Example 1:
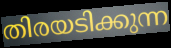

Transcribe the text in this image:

തിരയടിക്കുന്ന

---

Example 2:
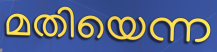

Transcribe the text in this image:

മതിയെന്ന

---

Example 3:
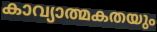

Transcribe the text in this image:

കാവ്യാത്മകതയും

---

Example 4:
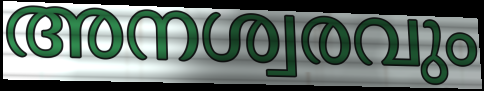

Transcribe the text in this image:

അനശ്വരവും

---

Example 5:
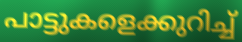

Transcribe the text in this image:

പാട്ടുകളെക്കുറിച്ച്